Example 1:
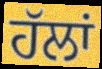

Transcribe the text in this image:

ਹੱਲਾਂ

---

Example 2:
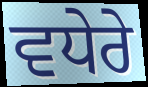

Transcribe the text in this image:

ਵਧੇਰੇ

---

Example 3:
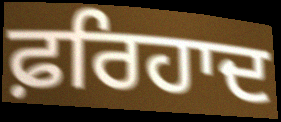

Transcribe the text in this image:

ਫ਼ਰਿਹਾਦ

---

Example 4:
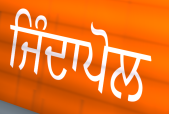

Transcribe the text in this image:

ਜਿੰਦਾਪੋਲ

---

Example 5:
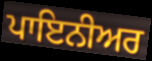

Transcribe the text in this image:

ਪਾਇਨੀਅਰ